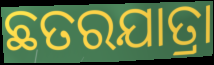
ଛତରଯାତ୍ରା